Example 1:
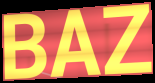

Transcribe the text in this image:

BAZ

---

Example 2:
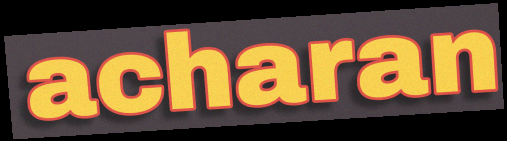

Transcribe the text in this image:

acharan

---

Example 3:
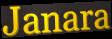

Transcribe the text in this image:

Janara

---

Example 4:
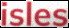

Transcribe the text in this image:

isles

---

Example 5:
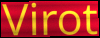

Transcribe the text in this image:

Virot